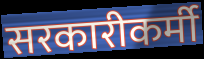
सरकारीकर्मी